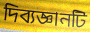
দিব্যজ্ঞানটি